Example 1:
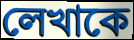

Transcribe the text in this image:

লেখাকে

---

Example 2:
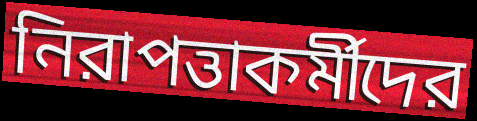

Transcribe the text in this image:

নিরাপত্তাকর্মীদের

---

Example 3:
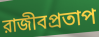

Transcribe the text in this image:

রাজীবপ্রতাপ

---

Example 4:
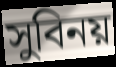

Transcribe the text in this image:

সুবিনয়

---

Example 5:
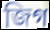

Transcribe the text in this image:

জিগ